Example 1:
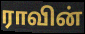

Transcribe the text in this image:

ராவின்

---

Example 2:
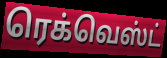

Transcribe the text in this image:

ரெக்வெஸ்ட்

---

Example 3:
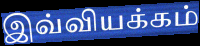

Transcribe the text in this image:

இவ்வியக்கம்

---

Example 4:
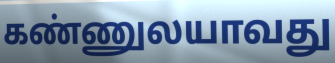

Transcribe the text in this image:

கண்ணுலயாவது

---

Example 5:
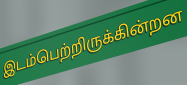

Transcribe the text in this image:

இடம்பெற்றிருக்கின்றன